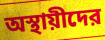
অস্থায়ীদের